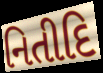
નિતીદિ